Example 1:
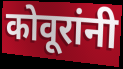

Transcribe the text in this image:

कोवूरांनी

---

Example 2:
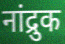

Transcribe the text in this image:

नांद्रुक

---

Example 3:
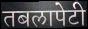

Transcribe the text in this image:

तबलापेटी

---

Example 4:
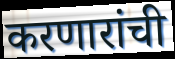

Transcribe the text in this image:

करणारांची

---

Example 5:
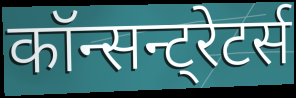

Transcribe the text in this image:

कॉन्सन्ट्रेटर्स